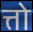
त्तो